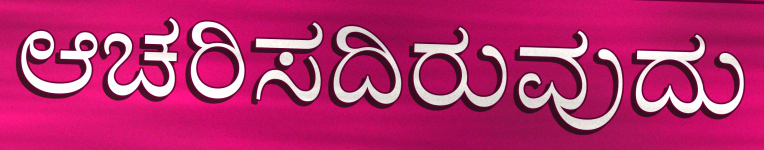
ಆಚರಿಸದಿರುವುದು